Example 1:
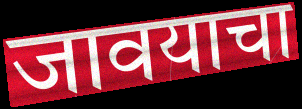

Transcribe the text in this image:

जावयाचा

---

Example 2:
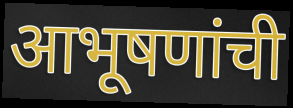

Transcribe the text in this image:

आभूषणांची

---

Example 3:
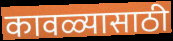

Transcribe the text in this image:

कावळ्यासाठी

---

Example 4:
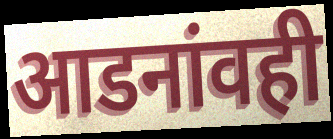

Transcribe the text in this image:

आडनांवही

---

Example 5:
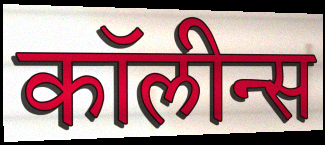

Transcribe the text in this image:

कॉलीन्स